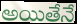
అయితేనే